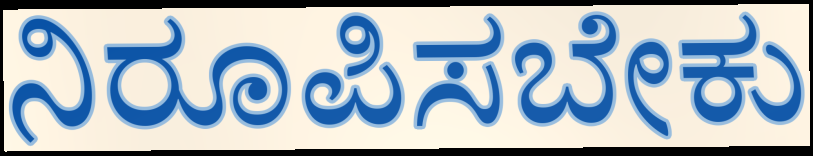
ನಿರೂಪಿಸಬೇಕು